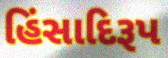
હિંસાદિરૂપ